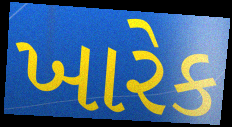
ખારેક